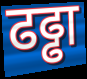
ढढ्ढा